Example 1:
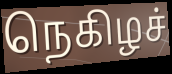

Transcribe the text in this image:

நெகிழச்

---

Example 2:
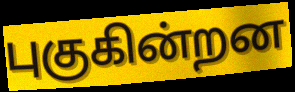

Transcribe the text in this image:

புகுகின்றன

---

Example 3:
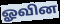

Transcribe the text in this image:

ஓவின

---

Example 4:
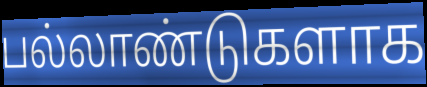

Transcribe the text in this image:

பல்லாண்டுகளாக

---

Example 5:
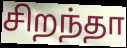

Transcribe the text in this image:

சிறந்தா